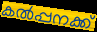
കൽപ്പനക്ക്